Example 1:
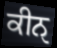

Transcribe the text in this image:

ਕੀਨੑ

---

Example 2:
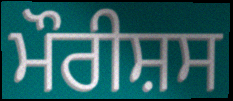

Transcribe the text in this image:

ਮੌਰੀਸ਼ਸ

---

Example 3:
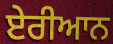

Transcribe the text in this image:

ਏਰੀਆਨ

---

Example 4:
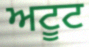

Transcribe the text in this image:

ਅਟੂਟ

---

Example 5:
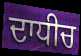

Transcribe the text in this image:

ਦਾਧੀਚ